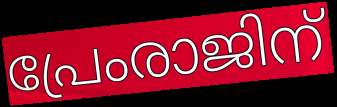
പ്രേംരാജിന്